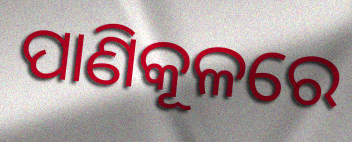
ପାଣିକୂଳରେ